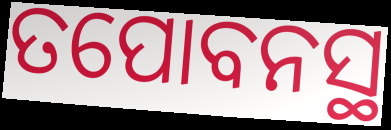
ତପୋବନସ୍ଥ